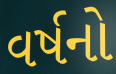
વર્ષનો